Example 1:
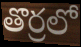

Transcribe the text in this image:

తొర్రలో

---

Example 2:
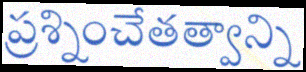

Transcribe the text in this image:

ప్రశ్నించేతత్వాన్ని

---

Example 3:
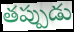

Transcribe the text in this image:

తప్పుడు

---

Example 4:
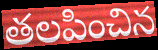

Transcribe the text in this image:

తలపించిన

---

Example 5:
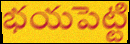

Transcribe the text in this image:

భయపెట్టి